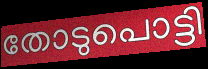
തോടുപൊട്ടി